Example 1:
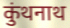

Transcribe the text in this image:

कुंथनाथ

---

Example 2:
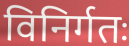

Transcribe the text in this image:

विनिर्गतः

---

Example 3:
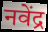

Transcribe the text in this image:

नवेंद्र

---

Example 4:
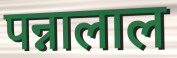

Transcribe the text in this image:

पन्नालाल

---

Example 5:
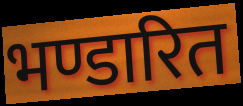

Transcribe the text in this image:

भण्डारित